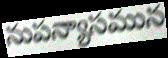
నుపన్యాసమున